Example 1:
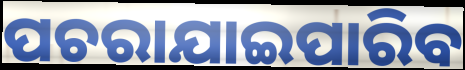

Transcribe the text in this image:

ପଚରାଯାଇପାରିବ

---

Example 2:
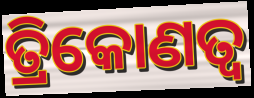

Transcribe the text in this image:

ତ୍ରିକୋଣତ୍ଵ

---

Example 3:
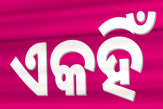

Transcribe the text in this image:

ଏକହିଁ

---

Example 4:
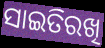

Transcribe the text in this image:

ସାଇତିରଖି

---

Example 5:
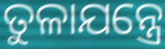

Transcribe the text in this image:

ତୁଳାଯନ୍ତ୍ରେ